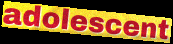
adolescent